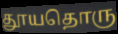
தூயதொரு